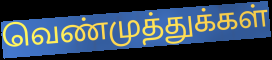
வெண்முத்துக்கள்